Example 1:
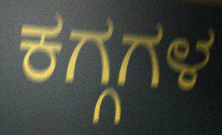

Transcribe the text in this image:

ಕಗ್ಗಗಳ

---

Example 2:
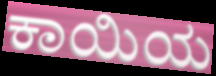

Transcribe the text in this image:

ಕಾಯಿಯ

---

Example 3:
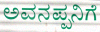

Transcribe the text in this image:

ಅವನಪ್ಪನಿಗೆ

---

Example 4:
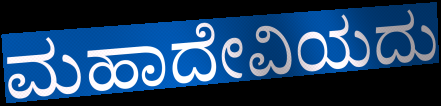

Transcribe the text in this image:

ಮಹಾದೇವಿಯದು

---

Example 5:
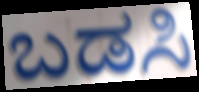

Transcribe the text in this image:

ಬಡಸಿ